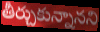
తీర్చుకున్నానని